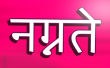
नग्नते